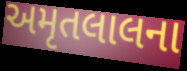
અમૃતલાલના